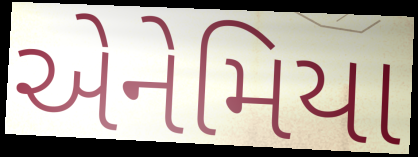
એનેમિયા